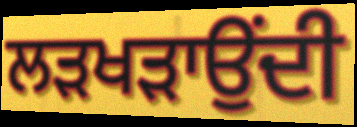
ਲੜਖੜਾਉਂਦੀ